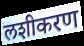
लशीकरण